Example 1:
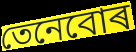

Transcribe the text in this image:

তেনেবোৰ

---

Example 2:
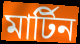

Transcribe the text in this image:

মাৰ্টিন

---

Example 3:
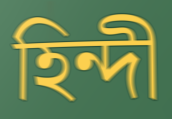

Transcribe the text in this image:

হিন্দী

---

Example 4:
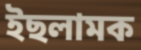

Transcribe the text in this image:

ইছলামক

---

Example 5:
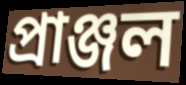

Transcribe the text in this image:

প্ৰাঞ্জল